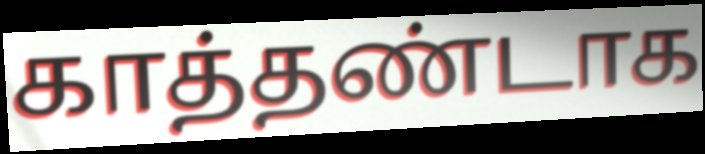
காத்தண்டாக